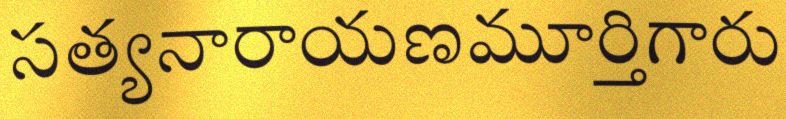
సత్యనారాయణమూర్తిగారు